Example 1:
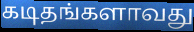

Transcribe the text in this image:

கடிதங்களாவது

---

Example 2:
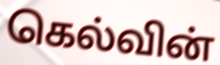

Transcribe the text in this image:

கெல்வின்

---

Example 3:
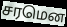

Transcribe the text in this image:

சரமென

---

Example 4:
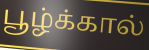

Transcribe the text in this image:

பூழ்க்கால்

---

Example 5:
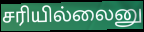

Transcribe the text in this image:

சரியில்லைனு